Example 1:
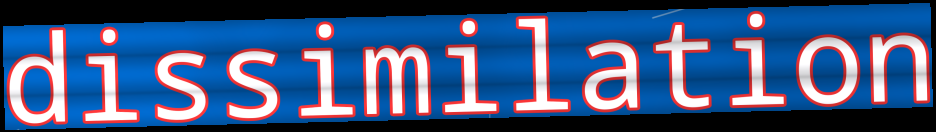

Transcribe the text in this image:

dissimilation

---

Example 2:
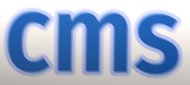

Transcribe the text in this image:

cms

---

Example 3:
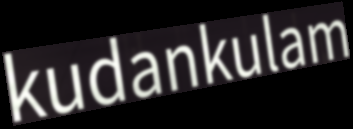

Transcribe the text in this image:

kudankulam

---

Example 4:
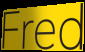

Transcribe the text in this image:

Fred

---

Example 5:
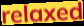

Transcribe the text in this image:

relaxed